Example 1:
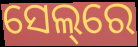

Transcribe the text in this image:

ସେଲ୍‌ରେ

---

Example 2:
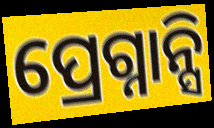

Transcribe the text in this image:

ପ୍ରେଗ୍ନାନ୍ସି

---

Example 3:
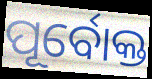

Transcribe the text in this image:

ପୂର୍ବୋକ୍ତ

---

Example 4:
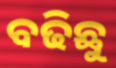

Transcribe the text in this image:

ବଢିଛୁ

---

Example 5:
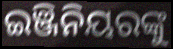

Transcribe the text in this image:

ଇଞ୍ଜିନିୟରଙ୍କୁ